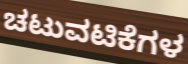
ಚಟುವಟಿಕೆಗಳ